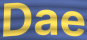
Dae